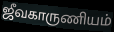
ஜீவகாருணியம்